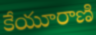
కేయూరాణి